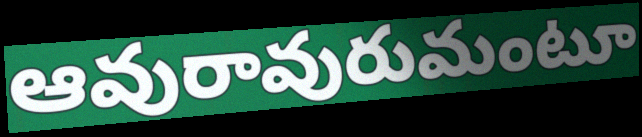
ఆవురావురుమంటూ